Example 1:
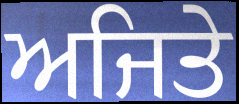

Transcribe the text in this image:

ਅਜਿਤੇ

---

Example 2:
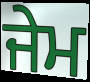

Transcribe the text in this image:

ਜੇਮ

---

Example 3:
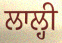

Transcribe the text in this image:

ਲਾਲ੍ਹੀ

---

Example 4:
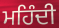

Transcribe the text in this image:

ਮਹਿੰਦੀ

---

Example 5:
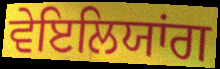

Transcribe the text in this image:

ਵੇਇਲਿਯਾਂਗ